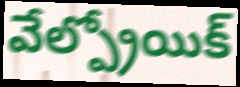
వేల్ప్రోయిక్